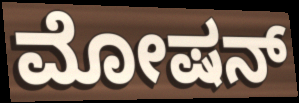
ಮೋಷನ್